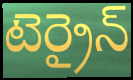
టెర్రైన్